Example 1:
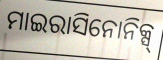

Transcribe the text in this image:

ମାଇରାସିନୋନିକ୍ସ୍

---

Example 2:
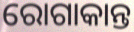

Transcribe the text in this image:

ରୋଗାକାନ୍ତ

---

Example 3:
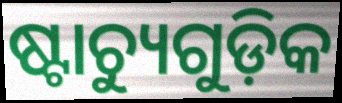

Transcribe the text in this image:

ଷ୍ଟାଚ୍ୟୁଗୁଡ଼ିକ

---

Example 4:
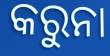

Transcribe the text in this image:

କରୁନା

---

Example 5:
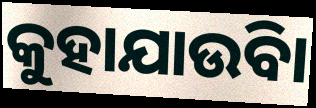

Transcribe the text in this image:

କୁହାଯାଉିବା